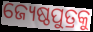
ଜ୍ୟେଷ୍ଠପୁତ୍ରକୁ